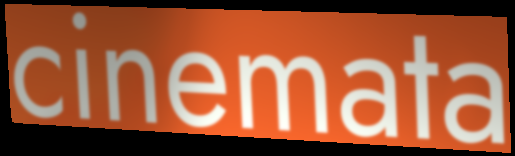
cinemata